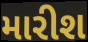
મારીશ